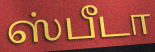
ஸ்பீடா